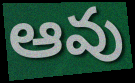
ఆవు